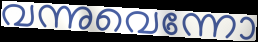
വന്നുവെന്നോ